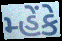
મ્હેંકે